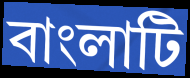
বাংলাটি